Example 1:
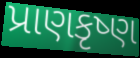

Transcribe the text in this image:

પ્રાણકૃષ્ણ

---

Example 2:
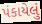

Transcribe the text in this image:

પંકાયેલું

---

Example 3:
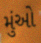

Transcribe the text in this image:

મુંઓ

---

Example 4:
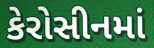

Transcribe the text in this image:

કેરોસીનમાં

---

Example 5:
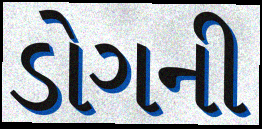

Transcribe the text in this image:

ડોગની